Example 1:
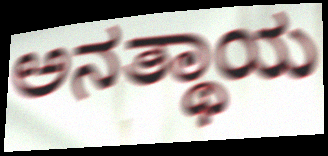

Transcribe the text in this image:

ಅನತ್ಥಾಯ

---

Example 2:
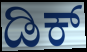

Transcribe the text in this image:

ಡಿಕ್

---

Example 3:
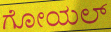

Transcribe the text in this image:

ಗೋಯಲ್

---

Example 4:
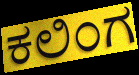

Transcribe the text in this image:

ಕಲಿಂಗ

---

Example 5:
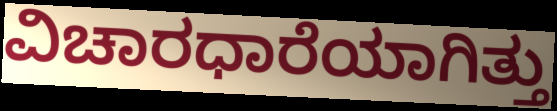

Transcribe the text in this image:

ವಿಚಾರಧಾರೆಯಾಗಿತ್ತು